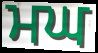
ਮਘ